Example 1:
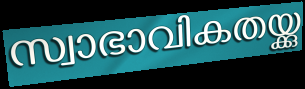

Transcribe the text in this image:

സ്വാഭാവികതയ്ക്കു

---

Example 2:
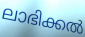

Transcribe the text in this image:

ലാഭിക്കൽ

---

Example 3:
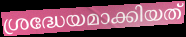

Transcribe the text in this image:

ശ്രദ്ധേയമാക്കിയത്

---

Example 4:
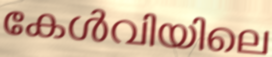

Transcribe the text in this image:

കേൾവിയിലെ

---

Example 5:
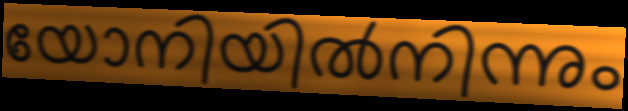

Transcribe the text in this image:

യോനിയിൽനിന്നും